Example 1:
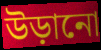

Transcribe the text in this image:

উড়ানো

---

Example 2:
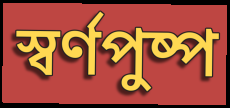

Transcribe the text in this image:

স্বর্ণপুষ্প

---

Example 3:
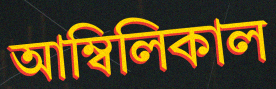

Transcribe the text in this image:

আম্বিলিকাল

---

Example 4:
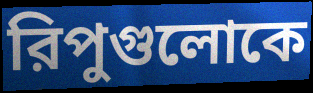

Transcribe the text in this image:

রিপুগুলোকে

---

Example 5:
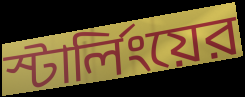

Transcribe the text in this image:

স্টার্লিংয়ের